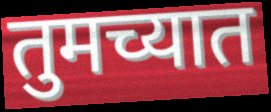
तुमच्यात